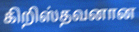
கிறிஸ்தவனான